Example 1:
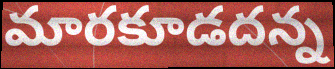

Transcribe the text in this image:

మారకూడదన్న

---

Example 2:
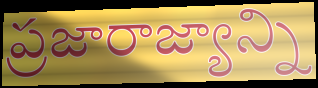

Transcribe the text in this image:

ప్రజారాజ్యాన్ని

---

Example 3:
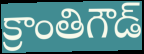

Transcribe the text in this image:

క్రాంతిగౌడ్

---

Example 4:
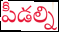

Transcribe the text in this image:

పీడల్ని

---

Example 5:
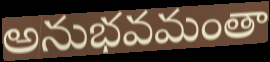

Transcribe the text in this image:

అనుభవమంతా